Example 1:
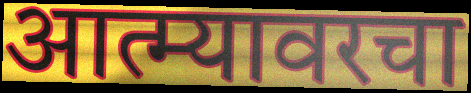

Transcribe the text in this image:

आत्म्यावरचा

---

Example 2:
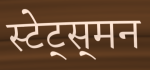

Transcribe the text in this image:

स्टेट्स्‌मन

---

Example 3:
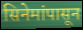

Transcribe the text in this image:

सिनेमांपासून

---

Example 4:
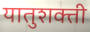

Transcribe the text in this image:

यातुशक्ती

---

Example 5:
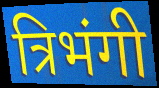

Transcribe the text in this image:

त्रिभंगी